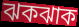
ঝকঝাক